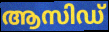
ആസിഡ്